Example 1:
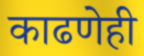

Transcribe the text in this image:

काढणेही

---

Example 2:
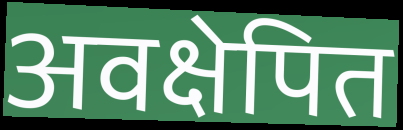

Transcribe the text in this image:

अवक्षेपित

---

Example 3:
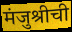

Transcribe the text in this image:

मंजुश्रीची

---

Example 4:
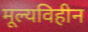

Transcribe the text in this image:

मूल्यविहीन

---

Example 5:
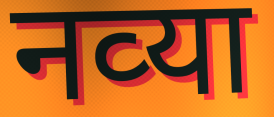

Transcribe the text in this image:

नव्‍या